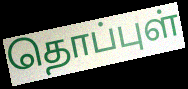
தொப்புள்